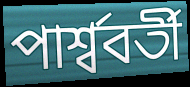
পার্শ্ববর্তী